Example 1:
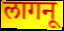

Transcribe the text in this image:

लागनू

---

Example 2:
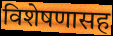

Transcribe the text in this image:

विशेषणासह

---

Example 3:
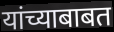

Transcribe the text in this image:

यांच्याबाबत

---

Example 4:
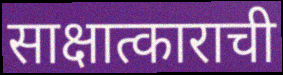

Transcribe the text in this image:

साक्षात्काराची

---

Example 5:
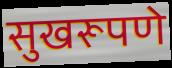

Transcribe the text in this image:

सुखरूपणे